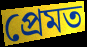
প্ৰেমত